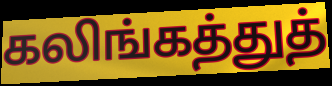
கலிங்கத்துத்